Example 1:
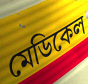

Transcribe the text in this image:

মেডিকেল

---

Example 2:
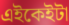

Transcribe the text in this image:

এইকেইটা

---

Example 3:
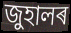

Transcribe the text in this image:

জুহালৰ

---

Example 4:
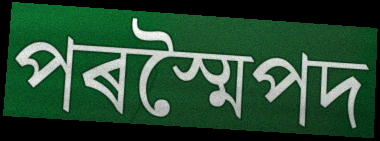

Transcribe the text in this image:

পৰস্মৈপদ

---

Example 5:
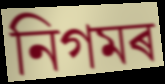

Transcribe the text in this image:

নিগমৰ